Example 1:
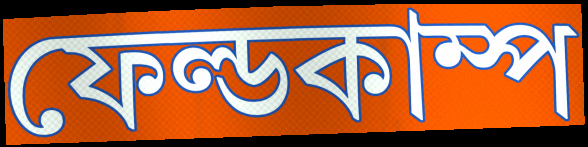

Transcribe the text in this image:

ফেল্ডকাম্প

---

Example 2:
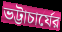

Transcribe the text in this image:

ভট্টাচার্যের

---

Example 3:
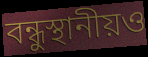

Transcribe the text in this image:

বন্ধুস্থানীয়ও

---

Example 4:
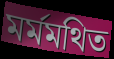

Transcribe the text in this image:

মর্মমথিত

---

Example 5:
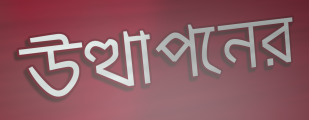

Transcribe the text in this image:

উত্থাপনের